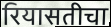
रियासतीचा